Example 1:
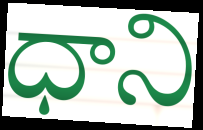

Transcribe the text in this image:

ధాని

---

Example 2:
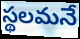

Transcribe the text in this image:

స్థలమనే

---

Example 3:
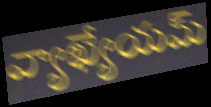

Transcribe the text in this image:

వ్యాఖ్యేయమ్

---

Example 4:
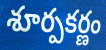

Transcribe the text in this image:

శూర్పకర్ణం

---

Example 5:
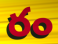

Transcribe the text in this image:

రం